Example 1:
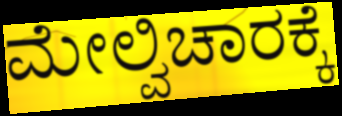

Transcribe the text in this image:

ಮೇಲ್ವಿಚಾರಕ್ಕೆ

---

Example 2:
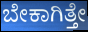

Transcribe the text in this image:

ಬೇಕಾಗಿತ್ತೇ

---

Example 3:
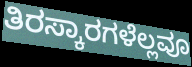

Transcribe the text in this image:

ತಿರಸ್ಕಾರಗಳೆಲ್ಲವೂ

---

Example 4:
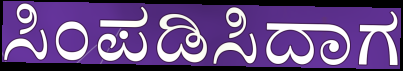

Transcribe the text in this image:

ಸಿಂಪಡಿಸಿದಾಗ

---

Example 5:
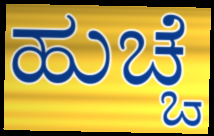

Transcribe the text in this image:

ಹುಚ್ಚೆ